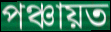
পঞ্চায়ত